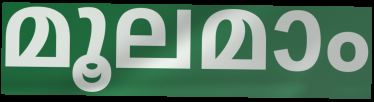
മൂലമാം